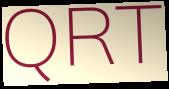
QRT